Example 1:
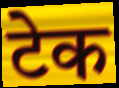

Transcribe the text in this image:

टेक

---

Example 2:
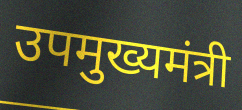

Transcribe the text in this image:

उपमुख्यमंत्री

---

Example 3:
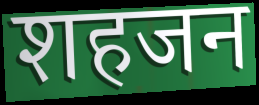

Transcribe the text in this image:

शहजन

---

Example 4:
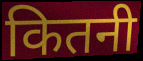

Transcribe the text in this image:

कितनी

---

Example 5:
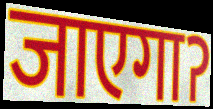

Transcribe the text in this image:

जाएगाॽ